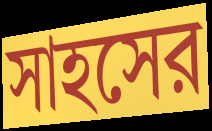
সাহসের